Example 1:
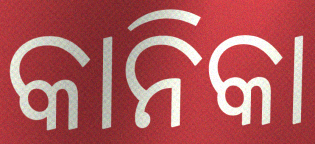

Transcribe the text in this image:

କାନିକା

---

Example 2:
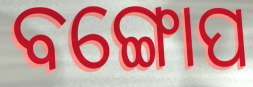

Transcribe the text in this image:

ବଙ୍ଗୋପ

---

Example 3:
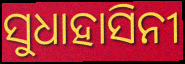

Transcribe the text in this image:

ସୁଧାହାସିନୀ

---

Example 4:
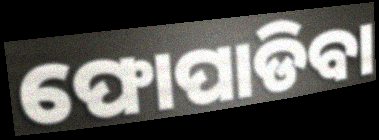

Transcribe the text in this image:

ଫୋପାଡିବା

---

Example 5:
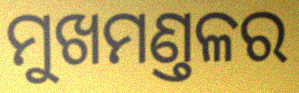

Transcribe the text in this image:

ମୁଖମଣ୍ତଳର